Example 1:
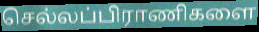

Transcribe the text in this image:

செல்லப்பிராணிகளை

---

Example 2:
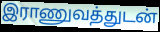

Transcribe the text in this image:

இராணுவத்துடன்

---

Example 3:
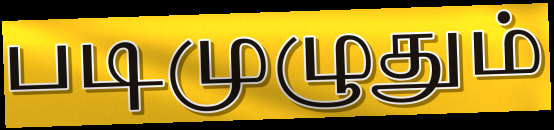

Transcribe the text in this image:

படிமுழுதும்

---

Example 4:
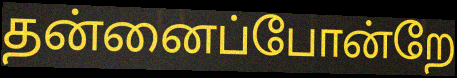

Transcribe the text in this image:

தன்னைப்போன்றே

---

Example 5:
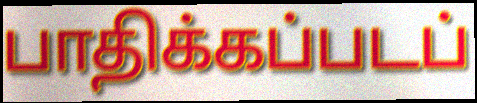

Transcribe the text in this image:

பாதிக்கப்படப்